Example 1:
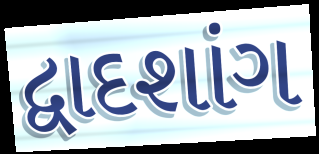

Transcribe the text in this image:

દ્વાદશાંગ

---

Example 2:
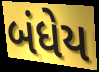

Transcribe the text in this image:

બંધેય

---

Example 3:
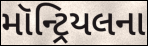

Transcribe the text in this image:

મૉન્ટ્રિયલના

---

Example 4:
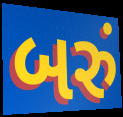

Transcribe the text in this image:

બરું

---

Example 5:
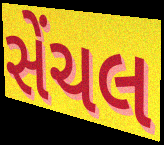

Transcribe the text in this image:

સેંચલ